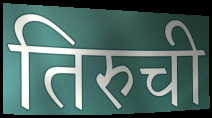
तिरुची